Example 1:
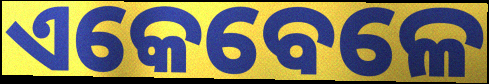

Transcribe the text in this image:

ଏକେବେଳେ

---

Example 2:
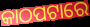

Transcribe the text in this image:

କାଠପଟାରେ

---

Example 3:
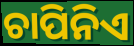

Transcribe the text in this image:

ଚାପିନିଏ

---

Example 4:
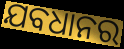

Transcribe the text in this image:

ଯବଧାନର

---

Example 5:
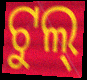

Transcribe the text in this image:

ଟୁଲ୍